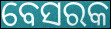
ବେସରକ